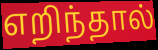
எறிந்தால்